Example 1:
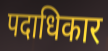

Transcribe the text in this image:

पदाधिकार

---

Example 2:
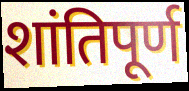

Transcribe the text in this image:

शांतिपूर्ण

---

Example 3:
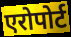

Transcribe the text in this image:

एरोपोर्ट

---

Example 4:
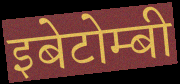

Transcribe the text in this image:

इबेटोम्बी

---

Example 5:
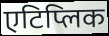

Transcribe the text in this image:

एटिप्लिक